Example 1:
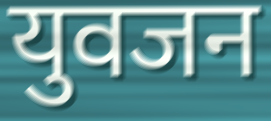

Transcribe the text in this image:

युवजन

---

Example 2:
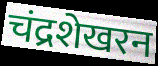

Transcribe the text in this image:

चंद्रशेखरन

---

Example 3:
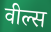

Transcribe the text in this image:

वील्स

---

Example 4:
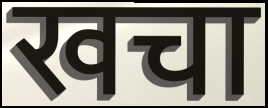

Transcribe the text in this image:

खचा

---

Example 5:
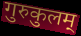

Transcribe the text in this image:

गुरुकुलम्